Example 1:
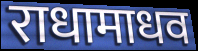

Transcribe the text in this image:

राधामाधव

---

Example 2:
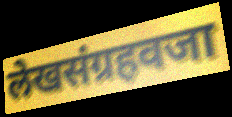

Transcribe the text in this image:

लेखसंग्रहवजा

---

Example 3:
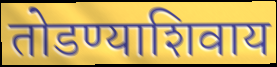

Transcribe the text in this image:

तोडण्याशिवाय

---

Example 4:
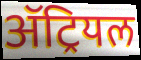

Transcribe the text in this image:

ॲट्रियल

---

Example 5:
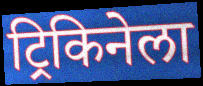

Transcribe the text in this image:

ट्रिकिनेला